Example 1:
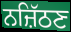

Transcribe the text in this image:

ਨਜ਼ਿੱਠਣ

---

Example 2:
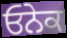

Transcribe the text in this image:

ਓਨੇਕ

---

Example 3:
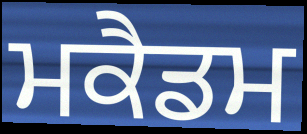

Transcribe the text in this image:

ਮਕੈਡਮ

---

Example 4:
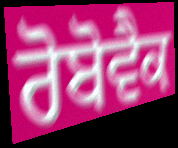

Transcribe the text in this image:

ਰੋਬੋਵੈਕ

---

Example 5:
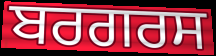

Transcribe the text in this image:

ਬਰਗਰਸ